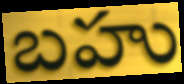
బహు